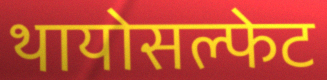
थायोसल्फेट